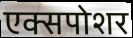
एक्सपोशर